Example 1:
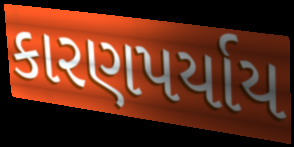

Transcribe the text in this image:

કારણપર્યાય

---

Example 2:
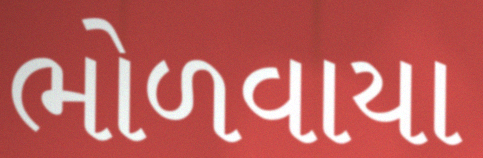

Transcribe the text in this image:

ભોળવાયા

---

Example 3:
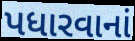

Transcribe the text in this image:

પધારવાનાં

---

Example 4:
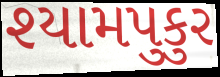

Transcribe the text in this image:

શ્યામપુકુર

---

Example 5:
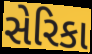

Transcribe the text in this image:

સેરિકા